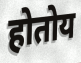
होतोय